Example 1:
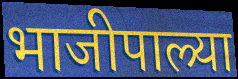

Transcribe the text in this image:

भाजीपाल्या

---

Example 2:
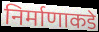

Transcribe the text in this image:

निर्माणाकडे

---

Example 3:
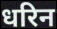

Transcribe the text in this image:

धरिन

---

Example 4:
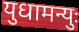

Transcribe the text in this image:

युधामन्युः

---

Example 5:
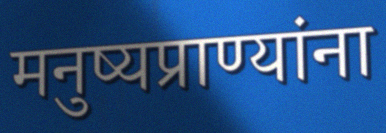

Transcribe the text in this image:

मनुष्यप्राण्यांना